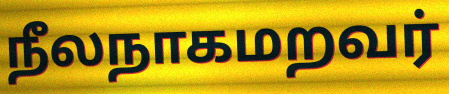
நீலநாகமறவர்